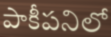
పాకీపనిలో